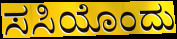
ಸಸಿಯೊಂದು